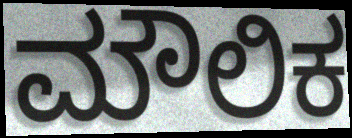
ಮೌಲಿಕ